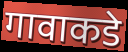
गावाकडे